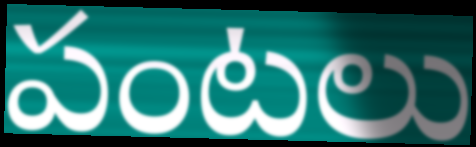
పంటలు